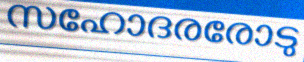
സഹോദരരോടു